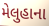
મેલુહાના